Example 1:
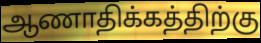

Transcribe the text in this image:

ஆணாதிக்கத்திற்கு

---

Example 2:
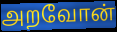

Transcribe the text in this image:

அறவோன்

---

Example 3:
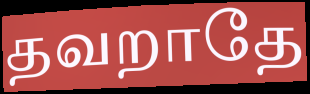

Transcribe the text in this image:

தவறாதே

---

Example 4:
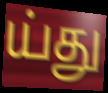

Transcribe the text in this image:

ய்து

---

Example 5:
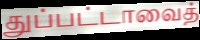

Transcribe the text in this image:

துப்பட்டாவைத்